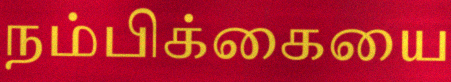
நம்பிக்கையை